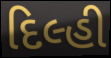
દિલ્હી